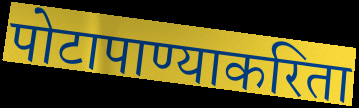
पोटापाण्याकरिता